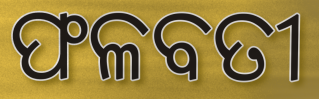
ଫଳବତୀ